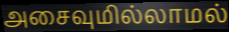
அசைவுமில்லாமல்